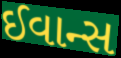
ઈવાન્સ